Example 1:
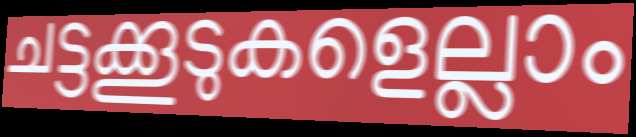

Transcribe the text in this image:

ചട്ടക്കൂടുകളെല്ലാം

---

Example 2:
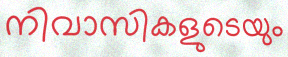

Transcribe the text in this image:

നിവാസികളുടെയും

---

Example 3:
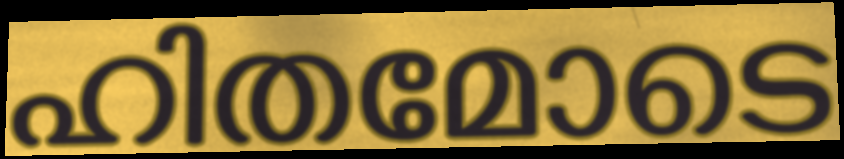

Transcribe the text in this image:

ഹിതമോടെ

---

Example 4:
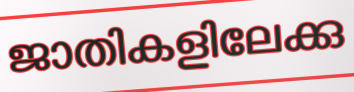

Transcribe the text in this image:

ജാതികളിലേക്കു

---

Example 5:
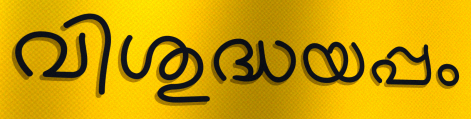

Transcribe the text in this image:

വിശുദ്ധയപ്പം